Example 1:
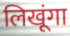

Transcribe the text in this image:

लिखूंगा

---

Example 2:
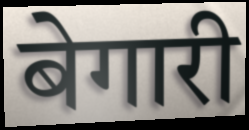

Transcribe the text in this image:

बेगारी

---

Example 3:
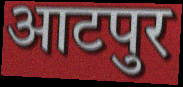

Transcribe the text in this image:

आटपुर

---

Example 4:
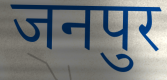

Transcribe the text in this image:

जनपुर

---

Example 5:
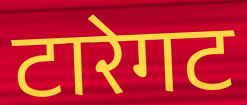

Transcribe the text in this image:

टारेगट